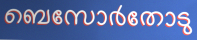
ബെസോർതോടു